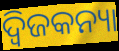
ଦ୍ୱିଜକନ୍ୟା